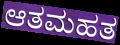
ಆತಮಹತ